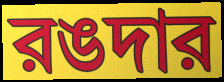
রঙদার